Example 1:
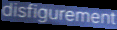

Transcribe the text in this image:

disfigurement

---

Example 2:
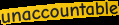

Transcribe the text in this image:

unaccountable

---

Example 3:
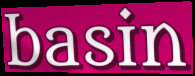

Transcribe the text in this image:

basin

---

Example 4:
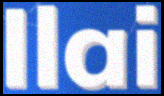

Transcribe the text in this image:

Ilai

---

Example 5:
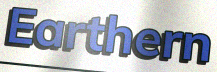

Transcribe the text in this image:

Earthern